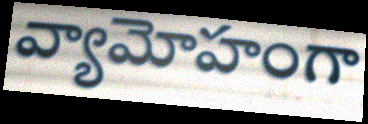
వ్యామోహంగా